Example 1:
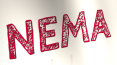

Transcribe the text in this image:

NEMA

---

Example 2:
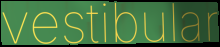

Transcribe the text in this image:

vestibular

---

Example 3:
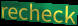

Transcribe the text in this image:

recheck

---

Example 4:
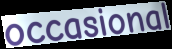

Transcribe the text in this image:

occasional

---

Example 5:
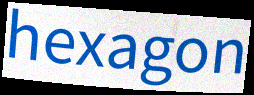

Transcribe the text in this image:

hexagon